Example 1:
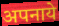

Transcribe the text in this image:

अपनाये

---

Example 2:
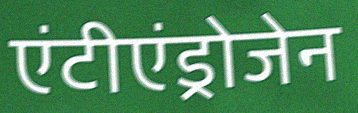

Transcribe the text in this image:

एंटीएंड्रोजेन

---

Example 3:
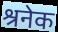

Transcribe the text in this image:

श्रनेक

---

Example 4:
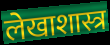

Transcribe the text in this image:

लेखाशास्त्र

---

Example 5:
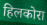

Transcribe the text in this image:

हिलकोरा